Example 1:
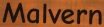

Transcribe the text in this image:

Malvern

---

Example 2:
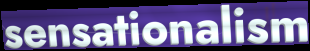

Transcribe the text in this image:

sensationalism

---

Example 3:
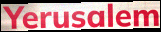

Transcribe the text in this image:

Yerusalem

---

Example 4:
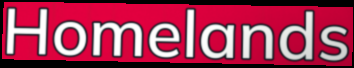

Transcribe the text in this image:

Homelands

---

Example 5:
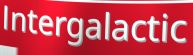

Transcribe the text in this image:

Intergalactic